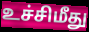
உச்சிமீது